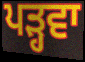
ਪੜ੍ਹਵਾ